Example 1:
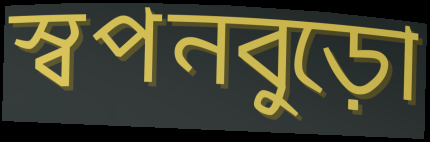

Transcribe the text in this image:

স্বপনবুড়ো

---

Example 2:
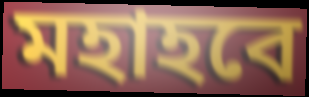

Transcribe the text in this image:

মহাহবে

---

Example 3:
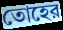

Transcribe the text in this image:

তোহের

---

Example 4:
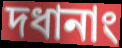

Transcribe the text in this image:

দধানাং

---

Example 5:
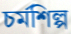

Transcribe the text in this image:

চর্মশিল্প